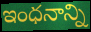
ఇంధనాన్ని